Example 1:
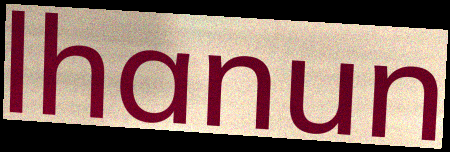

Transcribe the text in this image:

lhanun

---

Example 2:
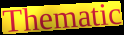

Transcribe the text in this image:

Thematic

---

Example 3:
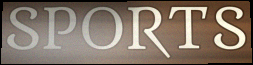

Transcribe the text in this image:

SPORTS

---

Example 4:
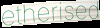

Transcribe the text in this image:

etherised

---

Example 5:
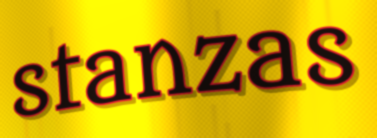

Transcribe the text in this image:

stanzas